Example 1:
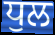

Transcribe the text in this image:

ਧੁਲ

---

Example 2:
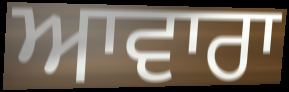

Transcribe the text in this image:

ਆਵਾਰਾ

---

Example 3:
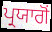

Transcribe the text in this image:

ਪ੍ਰਯਾਗੋਂ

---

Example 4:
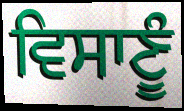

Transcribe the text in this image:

ਵਿਸਾਣੂੰ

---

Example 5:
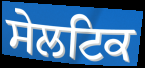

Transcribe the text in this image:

ਸੇਲਟਿਕ